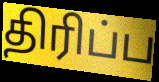
திரிப்ப